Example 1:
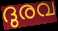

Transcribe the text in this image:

ദുരവ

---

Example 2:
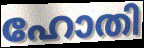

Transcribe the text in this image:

ഹോതി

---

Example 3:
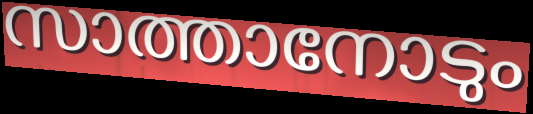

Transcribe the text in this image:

സാത്താനോടും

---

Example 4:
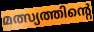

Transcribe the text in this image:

മത്സ്യത്തിന്റെ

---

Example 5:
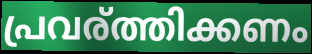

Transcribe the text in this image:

പ്രവര്ത്തിക്കണം